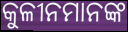
କୁଳୀନମାନଙ୍କ